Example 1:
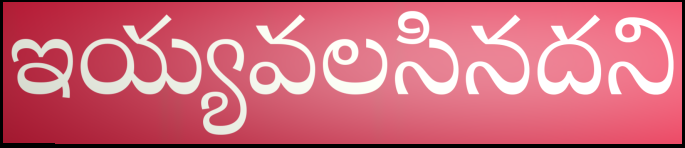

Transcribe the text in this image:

ఇయ్యవలసినదని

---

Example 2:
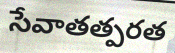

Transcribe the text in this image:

సేవాతత్పరత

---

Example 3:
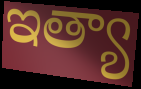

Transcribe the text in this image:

ఇత్యా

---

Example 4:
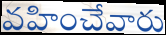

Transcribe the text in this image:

వహించేవారు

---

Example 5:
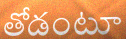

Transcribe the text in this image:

తోడంటూ